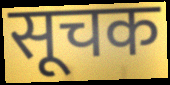
सूचक